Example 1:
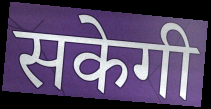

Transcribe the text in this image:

सकेगी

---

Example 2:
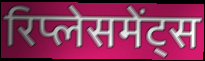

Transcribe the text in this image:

रिप्लेसमेंट्स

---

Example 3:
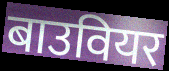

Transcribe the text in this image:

बाउवियर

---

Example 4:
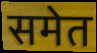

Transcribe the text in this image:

समेत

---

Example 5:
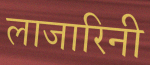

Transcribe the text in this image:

लाजारिनी